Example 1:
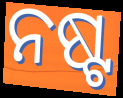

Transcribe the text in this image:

ନଷ୍ଟ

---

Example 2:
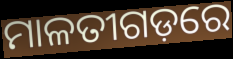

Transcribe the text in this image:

ମାଳତୀଗଡ଼ରେ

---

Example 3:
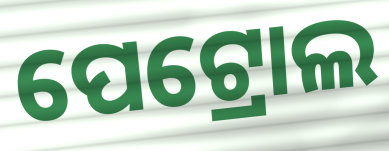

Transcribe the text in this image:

ପେଟ୍ରୋଲ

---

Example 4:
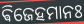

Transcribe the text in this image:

ଵିଜେହମାନଃ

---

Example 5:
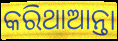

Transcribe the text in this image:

କରିଥାଆନ୍ତା